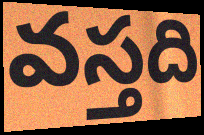
వస్తది